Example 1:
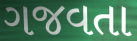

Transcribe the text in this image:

ગજવતા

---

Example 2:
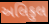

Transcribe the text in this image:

અલિકુલ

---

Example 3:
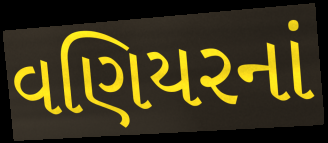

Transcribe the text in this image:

વણિયરનાં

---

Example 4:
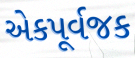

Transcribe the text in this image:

એકપૂર્વજક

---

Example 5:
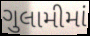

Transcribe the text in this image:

ગુલામીમાં